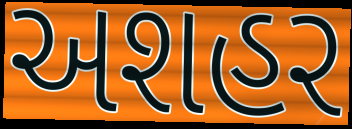
અશહર